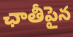
ఛాతీపైన